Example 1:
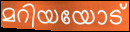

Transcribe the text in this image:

മറിയയോട്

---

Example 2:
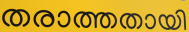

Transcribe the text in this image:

തരാത്തതായി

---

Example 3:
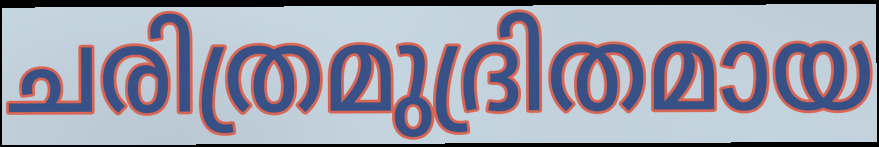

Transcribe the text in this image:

ചരിത്രമുദ്രിതമായ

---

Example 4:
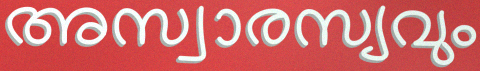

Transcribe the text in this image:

അസ്വാരസ്യവും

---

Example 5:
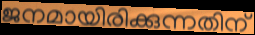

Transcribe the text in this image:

ജനമായിരിക്കുന്നതിന്